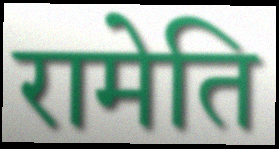
रामेति